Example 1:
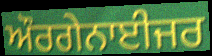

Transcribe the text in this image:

ਔਰਗੇਨਾਈਜਰ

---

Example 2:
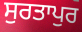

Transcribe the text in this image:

ਸੁਰਤਾਪੁਰ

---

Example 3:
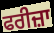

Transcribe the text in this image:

ਫਰੀਜ਼ਾ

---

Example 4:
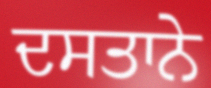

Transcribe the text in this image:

ਦਸਤਾਨੇ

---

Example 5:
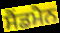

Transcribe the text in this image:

ਸੈਂਡਮੈਨ